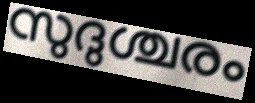
സുദുശ്ചരം